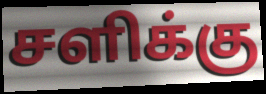
சளிக்கு